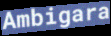
Ambigara